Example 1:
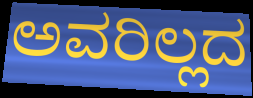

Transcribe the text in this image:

ಅವರಿಲ್ಲದ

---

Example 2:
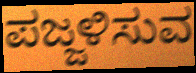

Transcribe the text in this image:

ಪಜ್ಜಳಿಸುವ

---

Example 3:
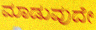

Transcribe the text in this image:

ಮಾಡುವುದೇ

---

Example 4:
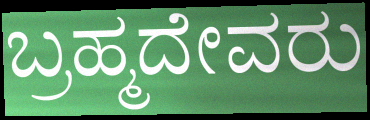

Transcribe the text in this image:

ಬ್ರಹ್ಮದೇವರು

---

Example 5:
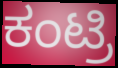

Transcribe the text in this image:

ಕಂಟ್ರಿ